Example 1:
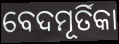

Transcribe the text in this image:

ବେଦମୂର୍ତିକା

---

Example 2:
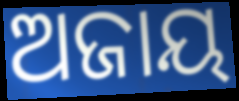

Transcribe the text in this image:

ଅଜାୟ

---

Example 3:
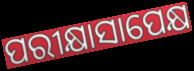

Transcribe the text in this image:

ପରୀକ୍ଷାସାପେକ୍ଷ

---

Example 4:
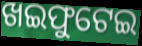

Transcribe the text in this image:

ଖଇଫୁଟେଇ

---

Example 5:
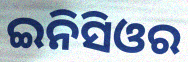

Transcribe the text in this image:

ଇନିସିଓର